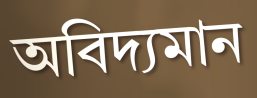
অবিদ্যমান